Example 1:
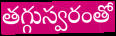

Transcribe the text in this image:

తగ్గుస్వరంతో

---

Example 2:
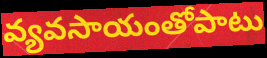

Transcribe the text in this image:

వ్యవసాయంతోపాటు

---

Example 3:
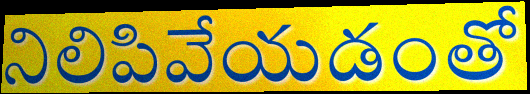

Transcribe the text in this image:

నిలిపివేయడంతో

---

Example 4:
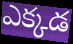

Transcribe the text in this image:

ఎక్కడ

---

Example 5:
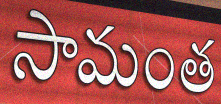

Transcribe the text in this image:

సామంత